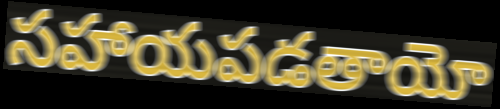
సహాయపడతాయో